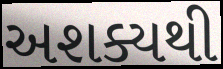
અશક્યથી